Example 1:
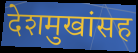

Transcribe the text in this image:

देशमुखांसह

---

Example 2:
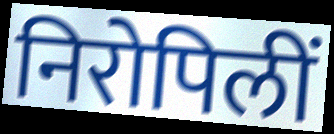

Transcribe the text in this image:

निरोपिलीं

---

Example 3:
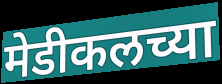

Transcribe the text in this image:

मेडीकलच्या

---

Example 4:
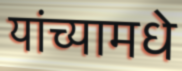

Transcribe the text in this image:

यांच्यामधे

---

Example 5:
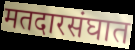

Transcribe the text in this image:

मतदारसंघात